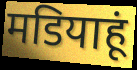
मडियाहूं